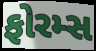
ફોરમ્સ